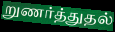
றுணர்த்துதல்